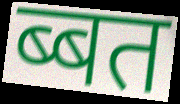
ब्बत